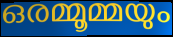
ഒരമ്മൂമ്മയും